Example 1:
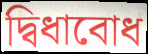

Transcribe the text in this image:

দ্বিধাবোধ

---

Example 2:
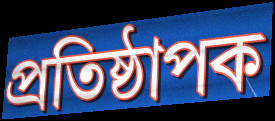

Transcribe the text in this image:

প্ৰতিষ্ঠাপক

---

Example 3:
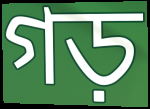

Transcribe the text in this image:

গড়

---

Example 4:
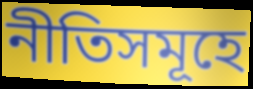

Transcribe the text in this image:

নীতিসমূহে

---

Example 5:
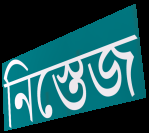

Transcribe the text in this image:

নিস্তেজ